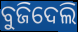
ବୁଜିଦେଲି